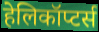
हेलिकॉप्टर्स